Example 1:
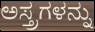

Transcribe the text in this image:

ಅಸ್ತ್ರಗಳನ್ನು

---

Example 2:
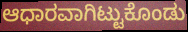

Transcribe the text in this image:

ಆಧಾರವಾಗಿಟ್ಟುಕೊಂಡು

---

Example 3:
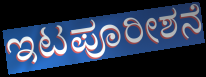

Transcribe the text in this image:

ಇಟಪೂರೀಶನೆ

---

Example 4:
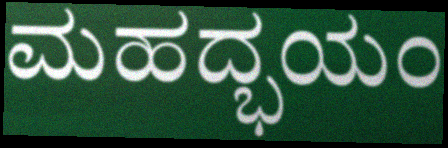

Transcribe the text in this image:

ಮಹದ್ಭಯಂ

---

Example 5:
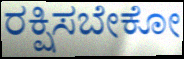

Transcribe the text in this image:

ರಕ್ಷಿಸಬೇಕೋ